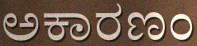
ಅಕಾರಣಂ